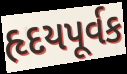
હૃદયપૂર્વક